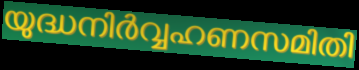
യുദ്ധനിർവ്വഹണസമിതി